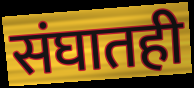
संघातही